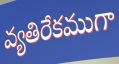
వ్యతిరేకముగా